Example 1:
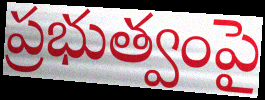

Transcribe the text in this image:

ప్రభుత్వంపై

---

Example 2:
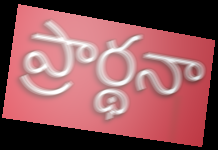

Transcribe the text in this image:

ప్రార్థనా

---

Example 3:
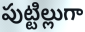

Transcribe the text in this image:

పుట్టిల్లుగా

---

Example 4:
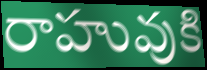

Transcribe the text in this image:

రాహువుకి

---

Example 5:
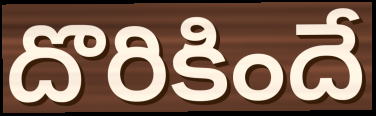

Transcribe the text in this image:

దొరికిందే